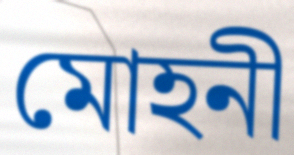
মোহনী